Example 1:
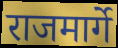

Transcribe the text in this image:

राजमार्गे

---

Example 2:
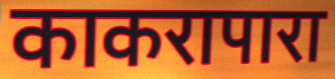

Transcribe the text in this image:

काकरापारा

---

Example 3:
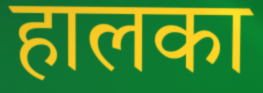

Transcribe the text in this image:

हालका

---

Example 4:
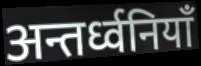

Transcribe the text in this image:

अन्तर्ध्वनियाँ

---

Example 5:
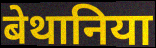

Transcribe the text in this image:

बेथानिया